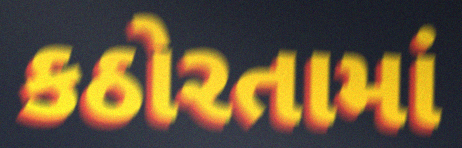
કઠોરતામાં